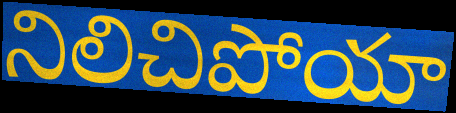
నిలిచిపోయా